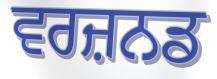
ਵਰਜ਼ਨਡ